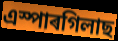
এস্পাৰগিলাছ